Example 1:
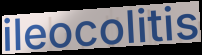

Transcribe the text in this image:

ileocolitis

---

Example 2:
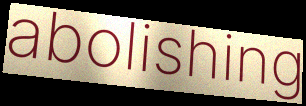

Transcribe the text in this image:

abolishing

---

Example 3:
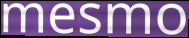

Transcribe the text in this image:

mesmo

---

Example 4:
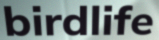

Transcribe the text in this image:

birdlife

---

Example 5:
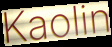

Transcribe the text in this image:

Kaolin